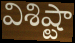
విశిష్టా